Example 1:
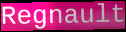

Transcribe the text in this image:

Regnault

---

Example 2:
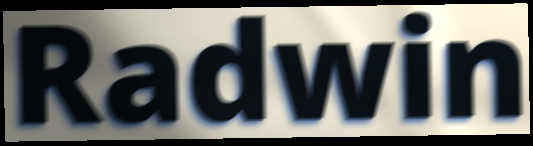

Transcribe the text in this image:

Radwin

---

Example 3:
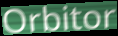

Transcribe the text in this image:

Orbitor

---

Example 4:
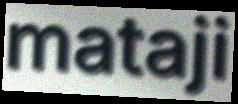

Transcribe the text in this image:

mataji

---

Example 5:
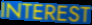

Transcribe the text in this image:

INTEREST